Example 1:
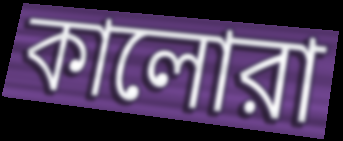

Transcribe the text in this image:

কালোরা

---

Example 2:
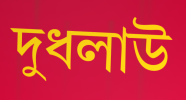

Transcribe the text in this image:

দুধলাউ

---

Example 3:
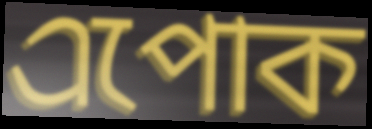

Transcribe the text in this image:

এপোক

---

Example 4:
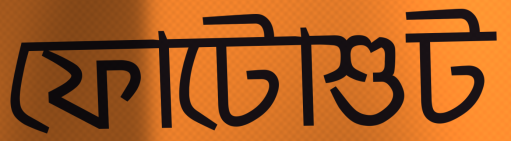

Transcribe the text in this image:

ফোটোশুট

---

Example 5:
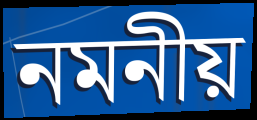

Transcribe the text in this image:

নমনীয়